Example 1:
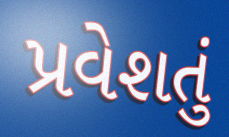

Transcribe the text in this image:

પ્રવેશતું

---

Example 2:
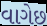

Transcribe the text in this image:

વાગેછ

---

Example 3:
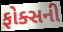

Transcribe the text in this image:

ફોક્સની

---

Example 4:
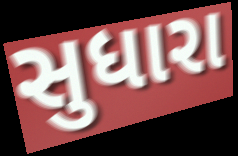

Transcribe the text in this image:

સુધારા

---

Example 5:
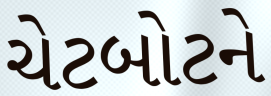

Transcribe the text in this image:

ચેટબોટને